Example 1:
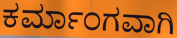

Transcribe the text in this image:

ಕರ್ಮಾಂಗವಾಗಿ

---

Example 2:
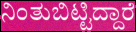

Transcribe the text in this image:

ನಿಂತುಬಿಟ್ಟಿದ್ದಾರೆ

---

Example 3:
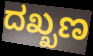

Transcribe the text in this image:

ದಖ್ಖಣ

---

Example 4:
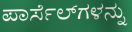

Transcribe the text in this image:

ಪಾರ್ಸೆಲ್‌ಗಳನ್ನು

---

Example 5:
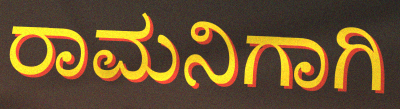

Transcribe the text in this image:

ರಾಮನಿಗಾಗಿ